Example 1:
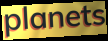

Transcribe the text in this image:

planets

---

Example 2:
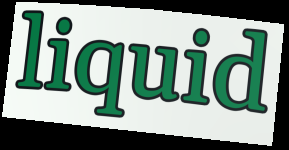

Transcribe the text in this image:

liquid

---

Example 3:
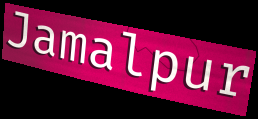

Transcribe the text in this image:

Jamalpur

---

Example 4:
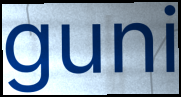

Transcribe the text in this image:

guni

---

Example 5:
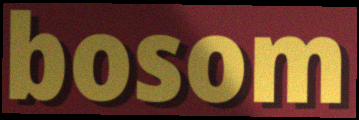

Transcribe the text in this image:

bosom